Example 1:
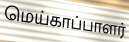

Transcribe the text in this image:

மெய்காப்பாளர்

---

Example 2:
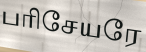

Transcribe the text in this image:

பரிசேயரே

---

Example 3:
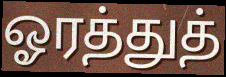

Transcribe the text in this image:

ஓரத்துத்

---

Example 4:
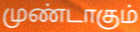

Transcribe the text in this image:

முண்டாகும்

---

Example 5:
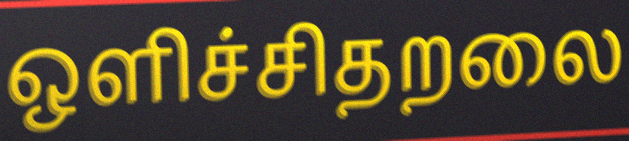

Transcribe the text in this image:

ஒளிச்சிதறலை